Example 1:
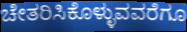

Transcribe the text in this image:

ಚೇತರಿಸಿಕೊಳ್ಳುವವರೆಗೂ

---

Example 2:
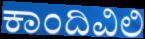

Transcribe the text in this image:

ಕಾಂದಿವಿಲಿ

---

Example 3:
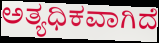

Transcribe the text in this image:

ಅತ್ಯಧಿಕವಾಗಿದೆ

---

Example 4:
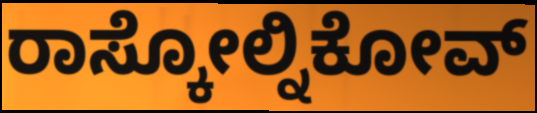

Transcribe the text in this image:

ರಾಸ್ಕೋಲ್ನಿಕೋವ್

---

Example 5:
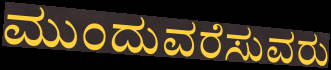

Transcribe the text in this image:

ಮುಂದುವರೆಸುವರು